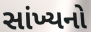
સાંખ્યનો